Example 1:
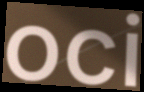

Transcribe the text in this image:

oci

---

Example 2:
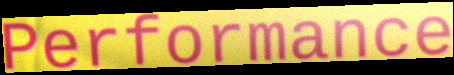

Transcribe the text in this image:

Performance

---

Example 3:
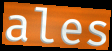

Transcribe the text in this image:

ales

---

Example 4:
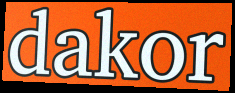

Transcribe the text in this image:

dakor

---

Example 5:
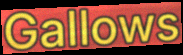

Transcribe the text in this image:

Gallows